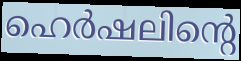
ഹെർഷലിന്റെ